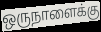
ஒருநாளைக்கு